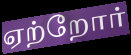
ஏற்றோர்